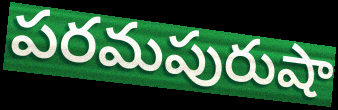
పరమపురుషా